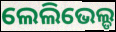
ଲେଲିଭେଲ୍ଡ